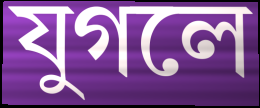
যুগলে